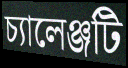
চ্যালেঞ্জটি